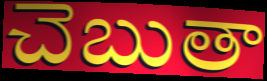
చెబుతా